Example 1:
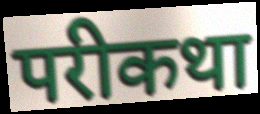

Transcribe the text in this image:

परीकथा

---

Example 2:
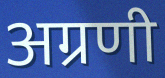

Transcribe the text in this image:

अग्रणी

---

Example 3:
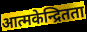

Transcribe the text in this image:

आत्मकेन्द्रितता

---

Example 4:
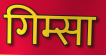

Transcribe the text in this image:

गिम्सा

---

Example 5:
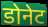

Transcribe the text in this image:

डोनेट